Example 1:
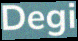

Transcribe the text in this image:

Degi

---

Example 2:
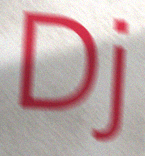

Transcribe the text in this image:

Dj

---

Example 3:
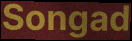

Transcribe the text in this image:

Songad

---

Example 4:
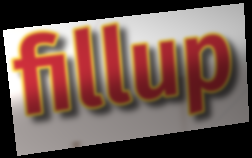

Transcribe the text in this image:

fillup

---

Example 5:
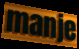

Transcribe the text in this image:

manje